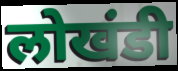
लोखंडी